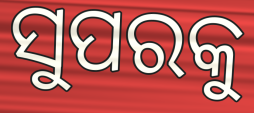
ସୁପରକୁ